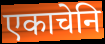
एकाचेनि